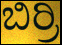
ಬಿರ್ರಿ